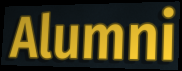
Alumni